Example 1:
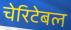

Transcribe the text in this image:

चेरिटेबल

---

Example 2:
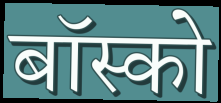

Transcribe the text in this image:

बॉस्को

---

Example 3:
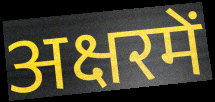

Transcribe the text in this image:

अक्षरमें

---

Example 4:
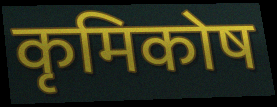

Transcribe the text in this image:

कृमिकोष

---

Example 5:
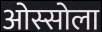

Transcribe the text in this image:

ओस्सोला